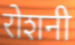
रोशनी